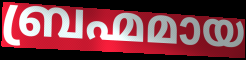
ബ്രഹ്മമായ